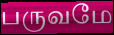
பருவமே